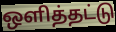
ஒளித்தட்டு